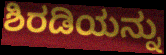
ಶಿರಡಿಯನ್ನು